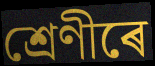
শ্ৰেণীৰে